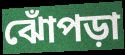
ঝোঁপড়া